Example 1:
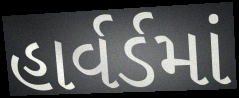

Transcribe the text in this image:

હાર્વર્ડમાં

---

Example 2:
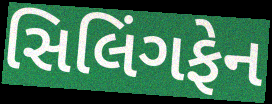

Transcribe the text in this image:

સિલિંગફેન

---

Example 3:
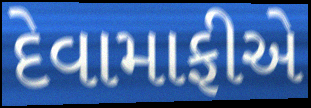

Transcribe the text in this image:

દેવામાફીએ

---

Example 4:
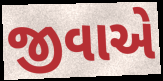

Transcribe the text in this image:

જીવાએ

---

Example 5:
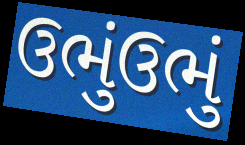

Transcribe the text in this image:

ઉભુંઉભું